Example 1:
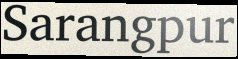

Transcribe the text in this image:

Sarangpur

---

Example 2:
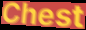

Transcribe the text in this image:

Chest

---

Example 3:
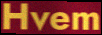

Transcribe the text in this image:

Hvem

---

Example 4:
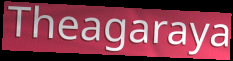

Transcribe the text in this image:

Theagaraya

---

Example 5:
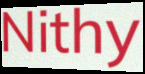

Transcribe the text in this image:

Nithy